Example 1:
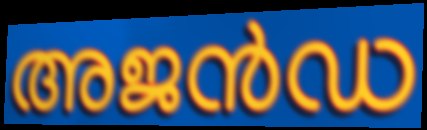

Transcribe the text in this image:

അജൻഡ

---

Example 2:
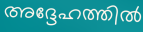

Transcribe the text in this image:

അദ്ദേഹത്തിൽ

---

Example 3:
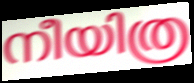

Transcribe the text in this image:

നീയിത്ര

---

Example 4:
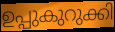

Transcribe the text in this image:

ഉപ്പുകുറുക്കി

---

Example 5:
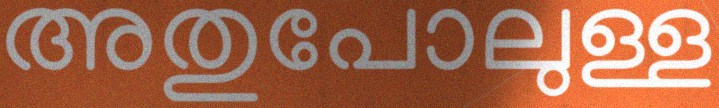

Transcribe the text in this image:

അതുപോലുള്ള